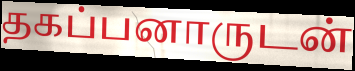
தகப்பனாருடன்